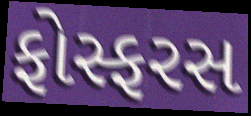
ફોસ્ફરસ